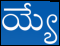
య్యే